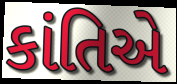
કાંતિએ